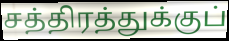
சத்திரத்துக்குப்